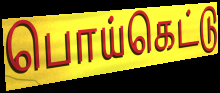
பொய்கெட்டு